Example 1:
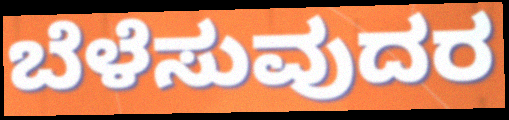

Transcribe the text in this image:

ಬೆಳೆಸುವುದರ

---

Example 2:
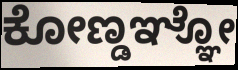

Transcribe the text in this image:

ಕೋಣ್ಡಞ್ಞೋ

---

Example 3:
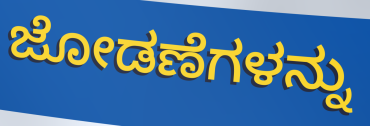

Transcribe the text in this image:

ಜೋಡಣೆಗಳನ್ನು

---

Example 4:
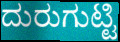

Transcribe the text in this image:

ದುರುಗುಟ್ಟಿ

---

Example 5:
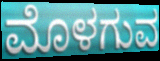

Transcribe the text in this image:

ಮೊಳಗುವ